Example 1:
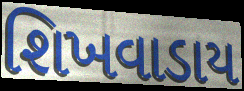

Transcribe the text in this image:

શિખવાડાય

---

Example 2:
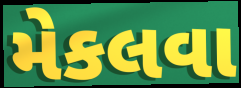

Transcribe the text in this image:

મેકલવા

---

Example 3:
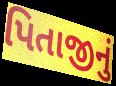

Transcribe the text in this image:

પિતાજીનું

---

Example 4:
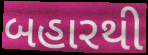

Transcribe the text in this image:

બહારથી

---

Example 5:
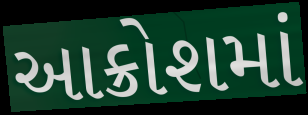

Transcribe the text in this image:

આક્રોશમાં